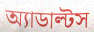
অ্যাডাল্টস